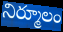
నిర్మూలం